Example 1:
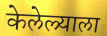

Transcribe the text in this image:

केलेल्याला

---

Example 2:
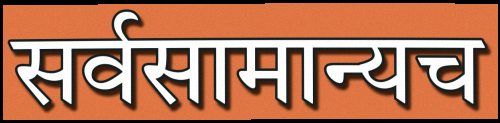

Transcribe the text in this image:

सर्वसामान्यच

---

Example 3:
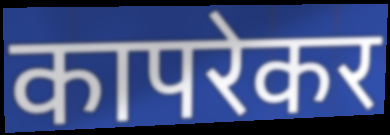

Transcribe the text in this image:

कापरेकर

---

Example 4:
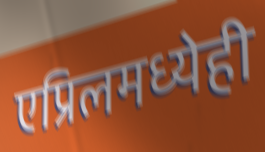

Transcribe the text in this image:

एप्रिलमध्येही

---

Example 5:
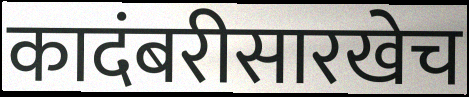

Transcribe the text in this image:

कादंबरीसारखेच